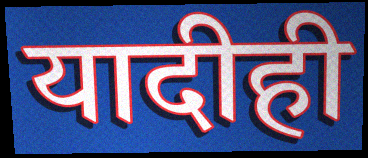
यादीही